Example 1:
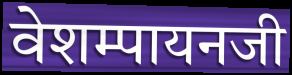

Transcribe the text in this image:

वेशम्पायनजी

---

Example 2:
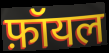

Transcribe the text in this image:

फ़ॉयल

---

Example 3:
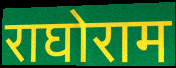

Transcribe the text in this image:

राघोराम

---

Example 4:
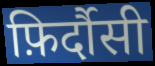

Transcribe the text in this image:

फ़िर्दौसी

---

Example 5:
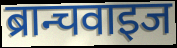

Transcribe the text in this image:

ब्रान्चवाइज